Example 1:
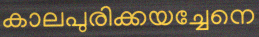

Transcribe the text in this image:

കാലപുരിക്കയച്ചേനെ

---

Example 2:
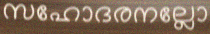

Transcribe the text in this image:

സഹോദരനല്ലോ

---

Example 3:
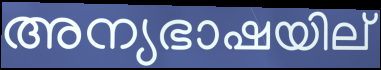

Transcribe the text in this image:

അന്യഭാഷയില്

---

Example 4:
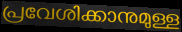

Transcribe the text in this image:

പ്രവേശിക്കാനുമുള്ള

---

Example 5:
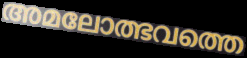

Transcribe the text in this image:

അമലോത്ഭവത്തെ